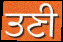
ਤਣੀ